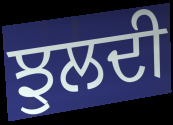
ਝੁਲਦੀ